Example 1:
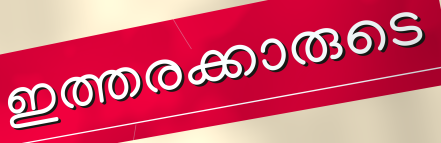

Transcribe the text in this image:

ഇത്തരക്കാരുടെ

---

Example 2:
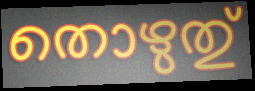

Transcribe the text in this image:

തൊഴുതു്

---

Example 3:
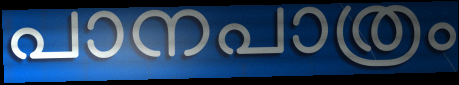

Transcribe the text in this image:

പാനപാത്രം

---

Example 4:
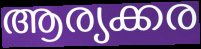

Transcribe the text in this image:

ആര്യക്കര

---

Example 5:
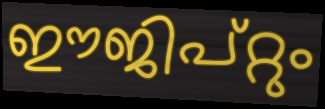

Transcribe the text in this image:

ഈജിപ്റ്റും